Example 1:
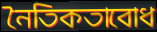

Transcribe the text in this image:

নৈতিকতাবোধ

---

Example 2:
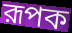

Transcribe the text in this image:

রূপক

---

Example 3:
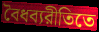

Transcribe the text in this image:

বৈধব্যরীতিতে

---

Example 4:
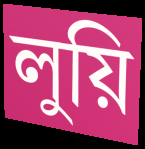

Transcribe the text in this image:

লুয়ি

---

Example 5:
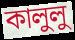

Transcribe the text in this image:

কালুলু